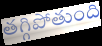
తగ్గిపోతుంది